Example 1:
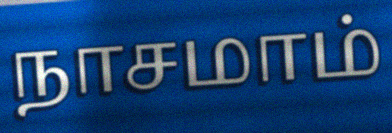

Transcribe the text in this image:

நாசமாம்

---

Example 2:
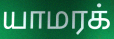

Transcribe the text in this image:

யாமரக்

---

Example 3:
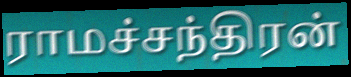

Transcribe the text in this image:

ராமச்சந்திரன்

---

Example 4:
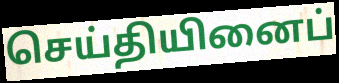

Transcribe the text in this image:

செய்தியினைப்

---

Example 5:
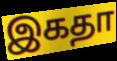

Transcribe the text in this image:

இகதா